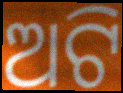
ଅଟି